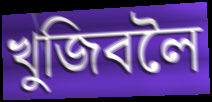
খুজিবলৈ